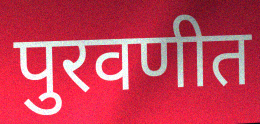
पुरवणीत